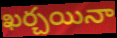
ఖర్చయినా